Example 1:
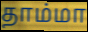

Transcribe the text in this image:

தாம்மா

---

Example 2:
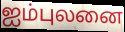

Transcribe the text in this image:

ஐம்புலனை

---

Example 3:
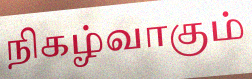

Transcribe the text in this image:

நிகழ்வாகும்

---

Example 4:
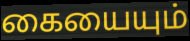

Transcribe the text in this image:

கையையும்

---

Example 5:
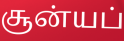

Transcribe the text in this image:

சூன்யப்